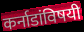
कर्नाडांविषयी